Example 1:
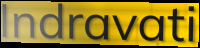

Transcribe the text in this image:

Indravati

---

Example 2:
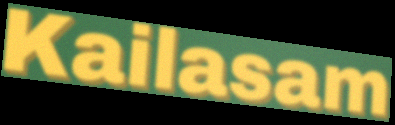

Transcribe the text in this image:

Kailasam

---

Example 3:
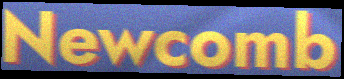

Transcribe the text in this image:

Newcomb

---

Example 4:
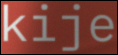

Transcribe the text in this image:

kije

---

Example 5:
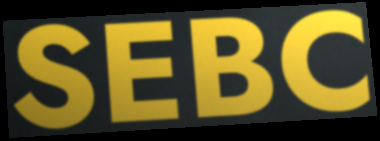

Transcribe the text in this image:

SEBC